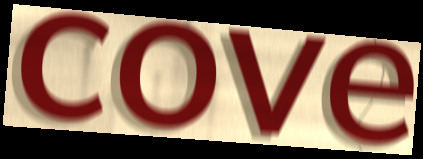
cove